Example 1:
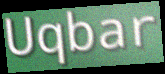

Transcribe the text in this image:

Uqbar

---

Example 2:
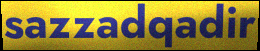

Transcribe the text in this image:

sazzadqadir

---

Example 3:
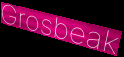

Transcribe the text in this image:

Grosbeak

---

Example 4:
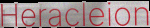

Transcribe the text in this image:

Heracleion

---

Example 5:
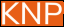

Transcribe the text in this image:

KNP